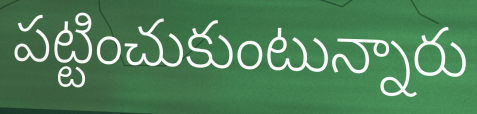
పట్టించుకుంటున్నారు